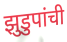
झुडुपांची